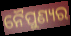
ନୈପୁଣ୍ୟର